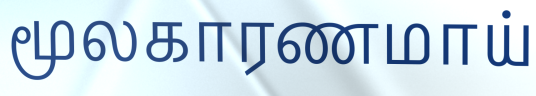
மூலகாரணமாய்